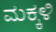
ಮಕ್ಕಳಿ